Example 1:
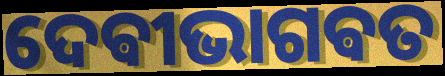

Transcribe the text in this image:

ଦେଵୀଭାଗଵତ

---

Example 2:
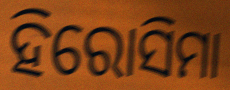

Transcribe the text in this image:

ହିରୋସିମା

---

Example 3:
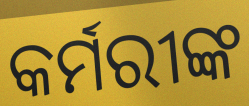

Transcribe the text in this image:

କର୍ମରୀଙ୍କ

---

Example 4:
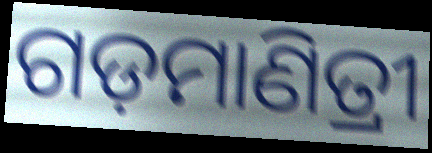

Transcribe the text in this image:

ଗଡ଼ମାଣିତ୍ରୀ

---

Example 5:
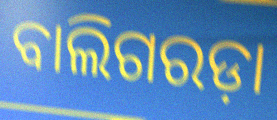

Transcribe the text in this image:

ବାଲିଗରଡ଼ା